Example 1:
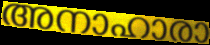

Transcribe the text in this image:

അനാഹാരാ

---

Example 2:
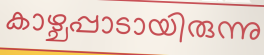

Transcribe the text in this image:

കാഴ്ചപ്പാടായിരുന്നു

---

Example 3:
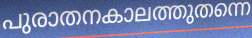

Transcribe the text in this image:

പുരാതനകാലത്തുതന്നെ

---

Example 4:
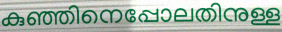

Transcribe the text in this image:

കുഞ്ഞിനെപ്പോലതിനുള്ള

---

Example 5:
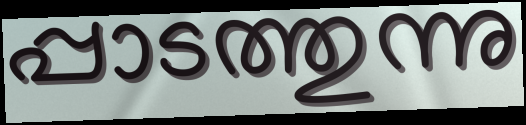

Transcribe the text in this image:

പ്പാടത്തുന്നു